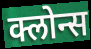
क्लोन्स